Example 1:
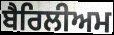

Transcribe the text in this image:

ਬੈਰਿਲੀਅਮ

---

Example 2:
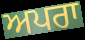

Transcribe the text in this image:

ਅਪਰਾ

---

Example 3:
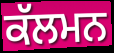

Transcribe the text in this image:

ਕੱਲਮਨ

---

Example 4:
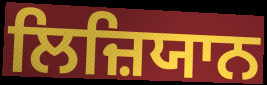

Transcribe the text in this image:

ਲਿਜ਼ਿਯਾਨ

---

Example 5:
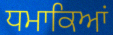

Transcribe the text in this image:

ਧਮਾਕਿਆਂ